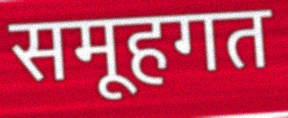
समूहगत